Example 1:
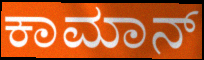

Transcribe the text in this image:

ಕಾಮಾನ್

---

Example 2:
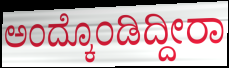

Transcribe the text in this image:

ಅಂದ್ಕೊಂಡಿದ್ದೀರಾ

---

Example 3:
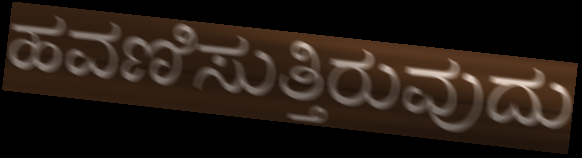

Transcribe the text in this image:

ಹವಣಿಸುತ್ತಿರುವುದು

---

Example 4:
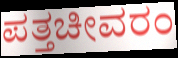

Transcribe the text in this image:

ಪತ್ತಚೀವರಂ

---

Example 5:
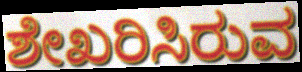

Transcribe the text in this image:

ಶೇಖರಿಸಿರುವ